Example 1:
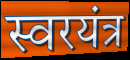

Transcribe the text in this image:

स्वरयंत्र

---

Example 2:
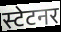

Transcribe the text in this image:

स्टेटनर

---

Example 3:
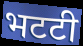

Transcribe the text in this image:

भटटी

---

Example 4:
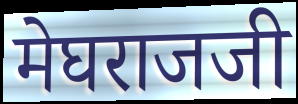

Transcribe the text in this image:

मेघराजजी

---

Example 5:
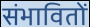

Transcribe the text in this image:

संभावितों